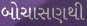
બોચાસણથી